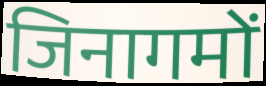
जिनागमों